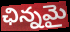
ఛిన్నమై